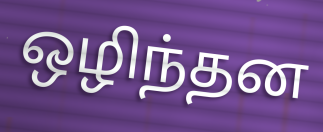
ஒழிந்தன